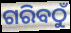
ଗରିବଠୁଁ